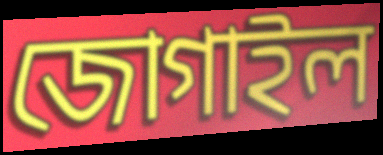
জোগাইল